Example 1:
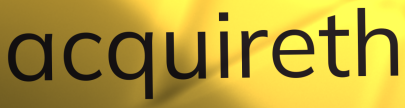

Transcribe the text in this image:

acquireth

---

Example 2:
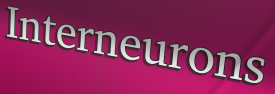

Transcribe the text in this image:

Interneurons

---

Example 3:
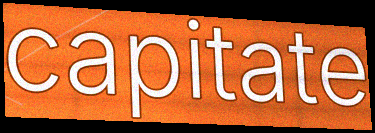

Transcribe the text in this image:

capitate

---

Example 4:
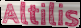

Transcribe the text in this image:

Altilis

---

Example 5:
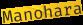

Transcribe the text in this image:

Manohara